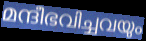
മന്ദീഭവിച്ചവയും